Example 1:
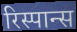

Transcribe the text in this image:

रिस्पान्स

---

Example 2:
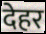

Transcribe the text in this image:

देहर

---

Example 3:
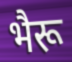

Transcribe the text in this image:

भैरू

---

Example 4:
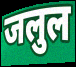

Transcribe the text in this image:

जलुल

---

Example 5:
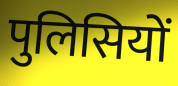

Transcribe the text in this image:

पुलिसियों